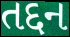
તદ્દન